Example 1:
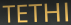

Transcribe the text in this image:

TETHI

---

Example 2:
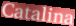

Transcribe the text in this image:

Catalina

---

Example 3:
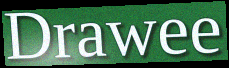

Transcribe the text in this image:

Drawee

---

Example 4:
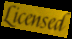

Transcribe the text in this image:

Licensed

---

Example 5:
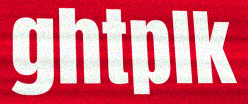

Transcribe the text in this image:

ghtplk